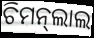
ଚିମନ୍‍ଲାଲ